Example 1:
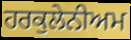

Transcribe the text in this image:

ਹਰਕੁਲੇਨੀਅਮ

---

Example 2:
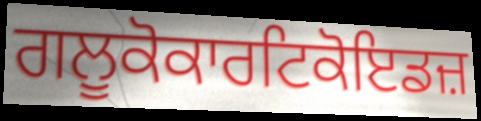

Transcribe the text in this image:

ਗਲੂਕੋਕਾਰਟਿਕੋਇਡਜ਼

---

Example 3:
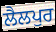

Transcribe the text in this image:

ਲੈਲਪੁਰ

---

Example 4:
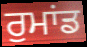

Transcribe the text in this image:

ਰੁਮਾਂਡ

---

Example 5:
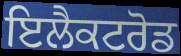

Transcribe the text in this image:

ਇਲੈਕਟਰੋਡ